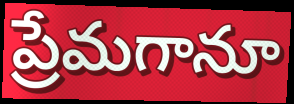
ప్రేమగానూ